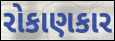
રોકાણકાર